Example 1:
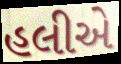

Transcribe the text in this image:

હલીએ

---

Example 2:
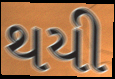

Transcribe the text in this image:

થયી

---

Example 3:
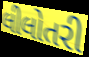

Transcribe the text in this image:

લીલોતરી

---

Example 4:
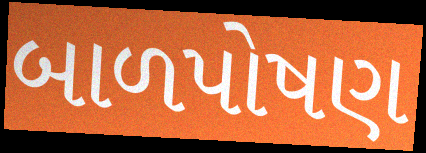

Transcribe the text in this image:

બાળપોષણ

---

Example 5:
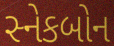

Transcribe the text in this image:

સ્નેકબોન